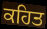
ਕਹਿਤ